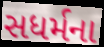
સધર્મના